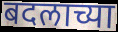
बदलाच्या